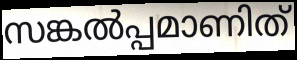
സങ്കൽപ്പമാണിത്